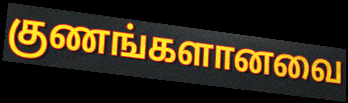
குணங்களானவை